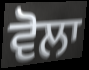
ਵੋਲਾ